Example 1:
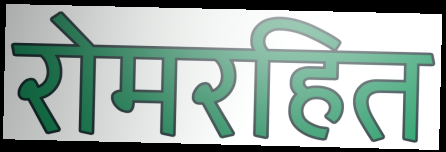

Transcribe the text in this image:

रोमरहित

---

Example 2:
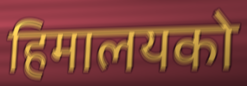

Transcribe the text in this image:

हिमालयको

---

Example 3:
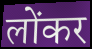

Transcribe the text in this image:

लोंकर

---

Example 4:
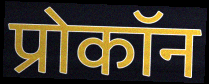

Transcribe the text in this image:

प्रोकॉन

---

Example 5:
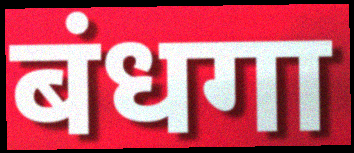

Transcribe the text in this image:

बंधगा